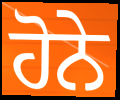
ਹੋਨੇ